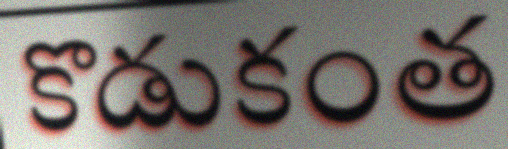
కొడుకంత